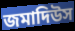
জমাদিউস